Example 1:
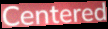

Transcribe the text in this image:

Centered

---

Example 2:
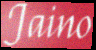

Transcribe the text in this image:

Jaino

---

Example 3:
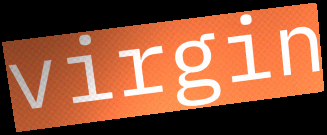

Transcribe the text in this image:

virgin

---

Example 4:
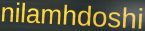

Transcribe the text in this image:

nilamhdoshi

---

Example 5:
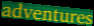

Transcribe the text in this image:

adventures